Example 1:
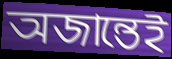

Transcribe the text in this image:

অজান্তেই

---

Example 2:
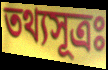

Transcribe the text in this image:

তথ্যসূত্রঃ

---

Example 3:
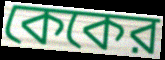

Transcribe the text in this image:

কেকের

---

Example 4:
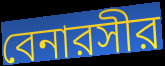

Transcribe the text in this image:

বেনারসীর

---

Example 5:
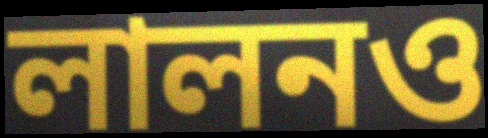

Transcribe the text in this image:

লালনও